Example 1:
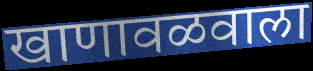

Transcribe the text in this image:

खाणावळवाला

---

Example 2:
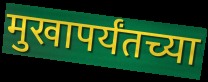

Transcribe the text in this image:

मुखापर्यंतच्या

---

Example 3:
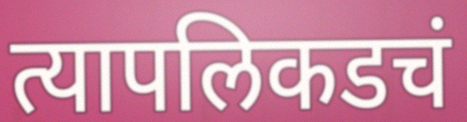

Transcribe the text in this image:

त्यापलिकडचं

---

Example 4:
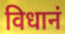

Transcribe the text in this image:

विधानं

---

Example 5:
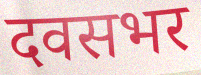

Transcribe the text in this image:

दवसभर